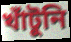
খাঁটুনি